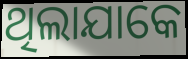
ଥିଲାଯାକେ